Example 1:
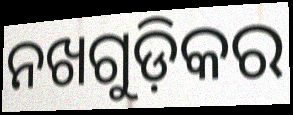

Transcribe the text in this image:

ନଖଗୁଡ଼ିକର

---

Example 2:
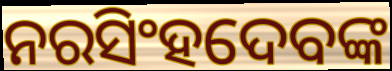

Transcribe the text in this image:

ନରସିଂହଦେବଙ୍କ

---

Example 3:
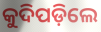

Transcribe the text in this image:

କୁଦିପଡ଼ିଲେ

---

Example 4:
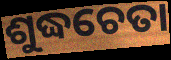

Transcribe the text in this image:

ଶୁଦ୍ଧଚେତା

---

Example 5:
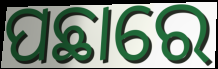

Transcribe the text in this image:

ପଛାରେ